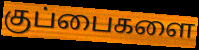
குப்பைகளை